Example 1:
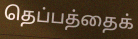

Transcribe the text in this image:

தெப்பத்தைக்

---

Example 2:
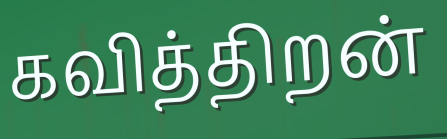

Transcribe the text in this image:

கவித்திறன்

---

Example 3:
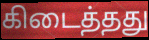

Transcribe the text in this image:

கிடைத்தது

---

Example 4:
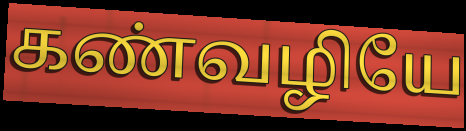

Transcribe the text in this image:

கண்வழியே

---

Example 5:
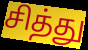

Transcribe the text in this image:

சித்து